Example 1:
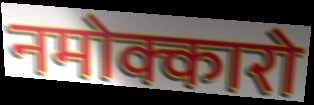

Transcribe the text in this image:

नमोक्कारो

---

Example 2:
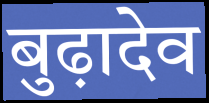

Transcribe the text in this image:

बुढ़ादेव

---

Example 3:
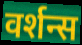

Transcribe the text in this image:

वर्शन्स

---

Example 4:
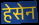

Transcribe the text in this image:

हेसेन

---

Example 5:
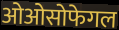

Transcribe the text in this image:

ओओसोफेगल